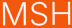
MSH